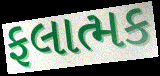
ફલાત્મક